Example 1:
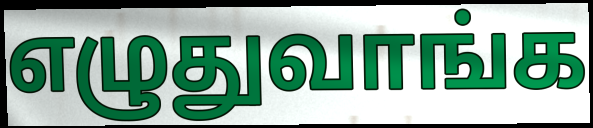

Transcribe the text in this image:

எழுதுவாங்க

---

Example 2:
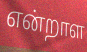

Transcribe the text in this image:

என்றாள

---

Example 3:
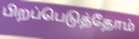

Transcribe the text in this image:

பிறப்பெடுத்தோம்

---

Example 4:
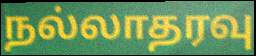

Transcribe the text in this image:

நல்லாதரவு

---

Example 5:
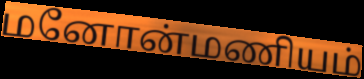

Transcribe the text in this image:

மனோன்மணியம்